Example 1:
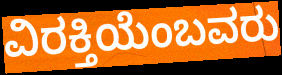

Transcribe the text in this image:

ವಿರಕ್ತಿಯೆಂಬವರು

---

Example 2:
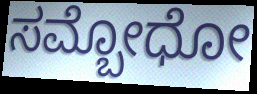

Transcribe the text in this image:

ಸಮ್ಬೋಧೋ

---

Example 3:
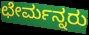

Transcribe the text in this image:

ಛೇರ್ಮನ್ನರು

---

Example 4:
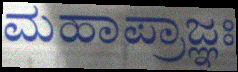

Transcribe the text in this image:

ಮಹಾಪ್ರಾಜ್ಞಃ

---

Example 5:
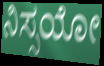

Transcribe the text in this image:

ನಿಸ್ಸಯೋ